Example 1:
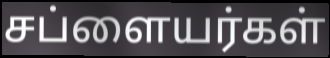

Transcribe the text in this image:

சப்ளையர்கள்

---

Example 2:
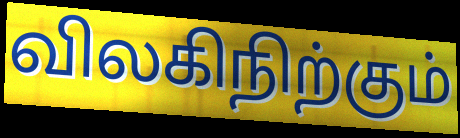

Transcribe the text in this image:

விலகிநிற்கும்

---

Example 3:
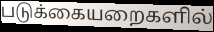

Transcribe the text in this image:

படுக்கையறைகளில்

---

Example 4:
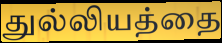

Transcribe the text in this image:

துல்லியத்தை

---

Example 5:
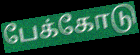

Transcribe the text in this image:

பேக்கோடு